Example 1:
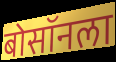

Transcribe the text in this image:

बोसॉनला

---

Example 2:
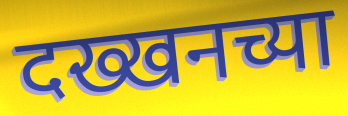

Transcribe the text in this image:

दख्खनच्या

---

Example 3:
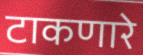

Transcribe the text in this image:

टाकणारे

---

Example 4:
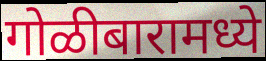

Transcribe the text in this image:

गोळीबारामध्ये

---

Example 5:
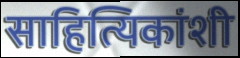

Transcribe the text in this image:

साहित्यिकांशी